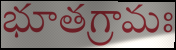
భూతగ్రామః